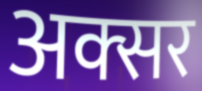
अक्‍सर